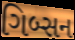
ગિબ્સન